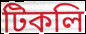
টিকলি